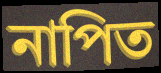
নাপিত